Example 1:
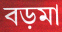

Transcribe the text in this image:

বড়মা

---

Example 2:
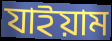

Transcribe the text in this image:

যাইয়াম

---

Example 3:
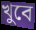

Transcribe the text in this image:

খুবে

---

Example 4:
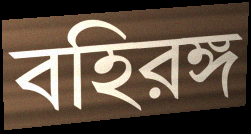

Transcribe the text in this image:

বহিরঙ্গ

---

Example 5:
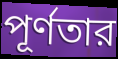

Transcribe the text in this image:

পূর্ণতার